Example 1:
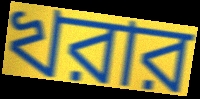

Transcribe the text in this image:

খরার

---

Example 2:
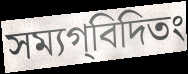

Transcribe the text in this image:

সম্যগ্‌বিদিতং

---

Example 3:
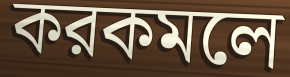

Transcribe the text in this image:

করকমলে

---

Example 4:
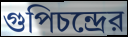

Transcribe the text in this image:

গুপিচন্দ্রের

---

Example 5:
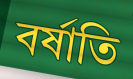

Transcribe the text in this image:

বর্ষাতি